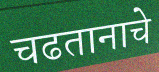
चढतानाचे